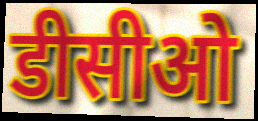
डीसीओ